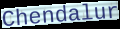
Chendalur